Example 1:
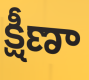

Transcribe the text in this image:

క్షీణా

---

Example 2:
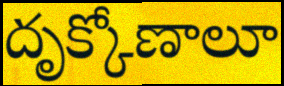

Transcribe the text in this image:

దృక్కోణాలూ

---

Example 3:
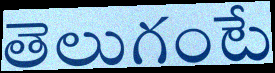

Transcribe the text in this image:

తెలుగంటే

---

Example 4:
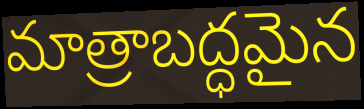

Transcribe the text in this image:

మాత్రాబద్ధమైన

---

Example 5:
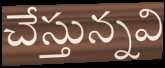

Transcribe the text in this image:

చేస్తున్నవి